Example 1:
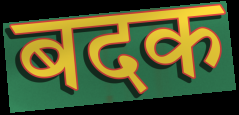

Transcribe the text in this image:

बदक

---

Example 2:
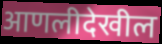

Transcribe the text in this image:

आणलीदेखील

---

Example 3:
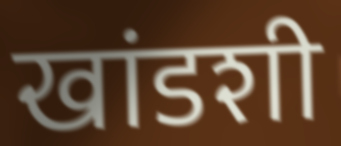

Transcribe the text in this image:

खांडशी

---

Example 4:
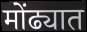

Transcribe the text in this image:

मोंढ्यात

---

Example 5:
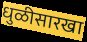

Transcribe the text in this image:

धुळीसारखा